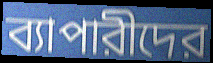
ব্যাপারীদের